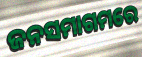
ଜନସମାଗମରେ